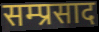
सम्प्रसाद